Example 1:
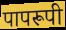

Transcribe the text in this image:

पापरूपी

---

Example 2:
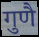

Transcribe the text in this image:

गुणै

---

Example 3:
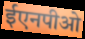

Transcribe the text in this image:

ईएनपीओ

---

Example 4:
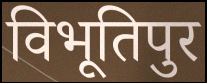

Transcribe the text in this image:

विभूतिपुर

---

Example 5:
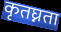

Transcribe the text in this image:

कृतघ्नता